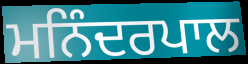
ਮਨਿੰਦਰਪਾਲ